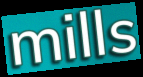
mills